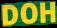
DOH